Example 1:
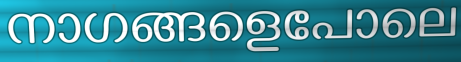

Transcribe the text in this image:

നാഗങ്ങളെപോലെ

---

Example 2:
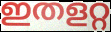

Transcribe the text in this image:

ഇതളറ്റ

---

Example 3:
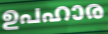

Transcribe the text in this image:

ഉപഹാര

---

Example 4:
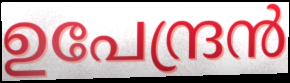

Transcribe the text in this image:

ഉപേന്ദ്രൻ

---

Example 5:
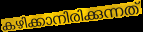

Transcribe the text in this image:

കഴിക്കാനിരിക്കുന്നത്